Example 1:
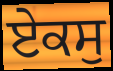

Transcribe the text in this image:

ਏਕਸੁ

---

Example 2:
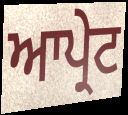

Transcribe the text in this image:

ਆਪ੍ਰੇਟ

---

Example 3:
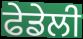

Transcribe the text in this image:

ਫੇਡੇਲੀ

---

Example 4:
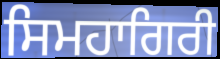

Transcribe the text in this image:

ਸਿਮਹਾਗਿਰੀ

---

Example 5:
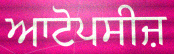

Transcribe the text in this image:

ਆਟੋਪਸੀਜ਼